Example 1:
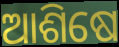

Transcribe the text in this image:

ଆଶିଷେ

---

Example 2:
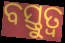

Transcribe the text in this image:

ବସ୍ତୁତ୍ୱ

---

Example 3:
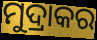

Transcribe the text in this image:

ମୁଦ୍ରାକର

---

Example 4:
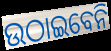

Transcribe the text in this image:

ଉଠାଇବେନି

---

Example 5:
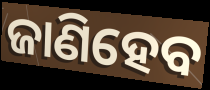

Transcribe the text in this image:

ଜାଣିହେବ